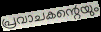
പ്രവാചകന്റെയും